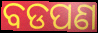
ବଡପଣ